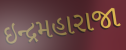
ઇન્દ્રમહારાજા